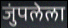
जुंपलेला